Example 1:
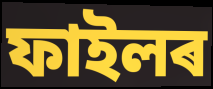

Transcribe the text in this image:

ফাইলৰ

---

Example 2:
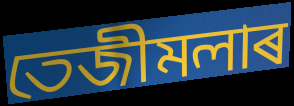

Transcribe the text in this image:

তেজীমলাৰ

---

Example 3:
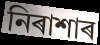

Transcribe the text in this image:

নিৰাশাৰ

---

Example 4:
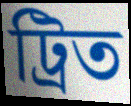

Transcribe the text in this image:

ট্ৰিত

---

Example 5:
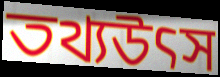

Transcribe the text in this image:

তথ্যউৎস